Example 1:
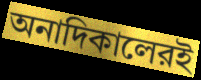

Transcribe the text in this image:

অনাদিকালেরই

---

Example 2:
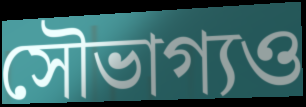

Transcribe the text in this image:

সৌভাগ্যও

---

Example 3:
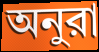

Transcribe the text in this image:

অনুরা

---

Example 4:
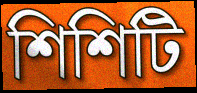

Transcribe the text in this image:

শিশিটি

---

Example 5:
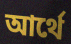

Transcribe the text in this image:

আর্থে